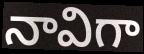
నావిగా